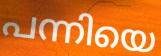
പന്നിയെ